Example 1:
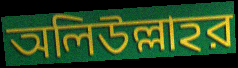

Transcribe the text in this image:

অলিউল্লাহর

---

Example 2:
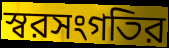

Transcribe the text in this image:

স্বরসংগতির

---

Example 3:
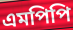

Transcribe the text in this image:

এমপিপি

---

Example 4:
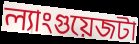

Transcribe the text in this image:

ল্যাংগুয়েজটা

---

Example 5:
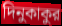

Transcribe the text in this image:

দিনুকাকুর